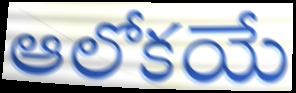
ఆలోకయే